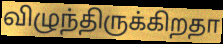
விழுந்திருக்கிறதா